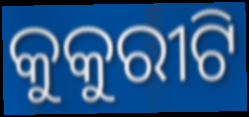
କୁକୁରୀଟି